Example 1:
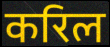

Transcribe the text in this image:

करिल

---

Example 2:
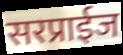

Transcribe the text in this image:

सरप्राईज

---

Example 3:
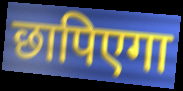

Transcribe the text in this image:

छापिएगा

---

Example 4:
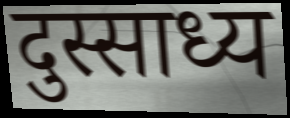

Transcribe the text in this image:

दुस्साध्य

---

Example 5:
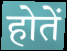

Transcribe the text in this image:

होतें